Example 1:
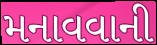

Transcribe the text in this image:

મનાવવાની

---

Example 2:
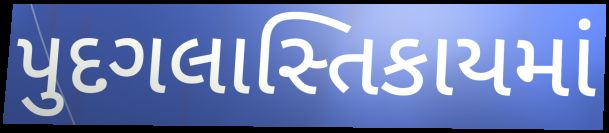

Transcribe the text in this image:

પુદગલાસ્તિકાયમાં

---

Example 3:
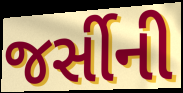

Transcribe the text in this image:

જર્સીની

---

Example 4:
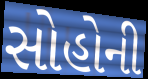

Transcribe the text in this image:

સોહોની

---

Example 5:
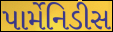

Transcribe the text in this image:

પાર્મેનિડીસ